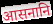
आसनानि